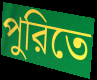
পুরিতে